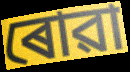
ৰোৱা